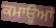
ਕਮਾਊਆਂ